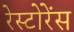
रेस्टोरेंस